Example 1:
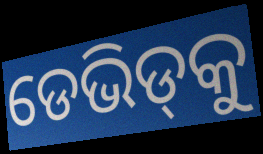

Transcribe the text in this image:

ଡେଭିଡ୍‍କୁ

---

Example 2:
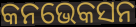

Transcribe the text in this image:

କନଭେକସନ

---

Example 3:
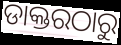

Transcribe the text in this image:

ଡାକ୍ତରଠାରୁ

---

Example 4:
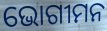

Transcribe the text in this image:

ଭୋଗୀମନ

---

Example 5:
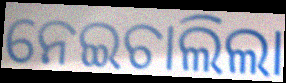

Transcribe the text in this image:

ନେଇଚାଲିଲା